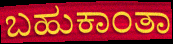
ಬಹುಕಾಂತಾ